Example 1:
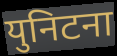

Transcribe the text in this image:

युनिटना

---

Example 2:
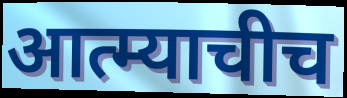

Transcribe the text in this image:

आत्म्याचीच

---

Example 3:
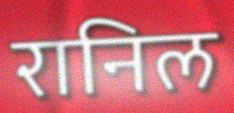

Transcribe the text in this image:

रानिल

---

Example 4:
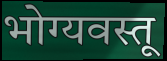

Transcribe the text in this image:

भोग्यवस्तू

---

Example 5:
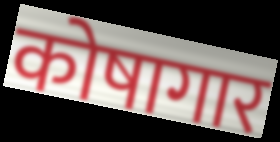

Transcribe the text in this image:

कोषागार